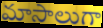
మాసాలుగా